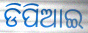
ଡିପିଆଇ